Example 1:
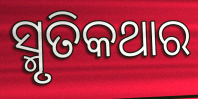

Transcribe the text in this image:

ସ୍ମୃତିକଥାର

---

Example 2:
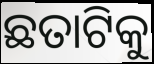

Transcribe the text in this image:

ଛତାଟିକୁ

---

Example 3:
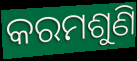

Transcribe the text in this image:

କରମଶୁଣି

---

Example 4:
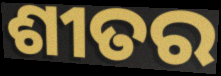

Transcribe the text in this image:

ଶୀତର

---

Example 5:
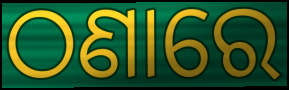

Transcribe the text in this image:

ଠଣାରେ